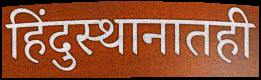
हिंदुस्थानातही